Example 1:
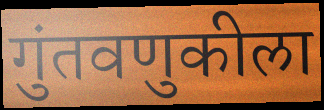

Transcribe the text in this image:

गुंतवणुकीला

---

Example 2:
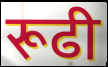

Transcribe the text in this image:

रूढी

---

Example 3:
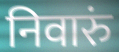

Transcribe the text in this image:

निवारुं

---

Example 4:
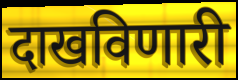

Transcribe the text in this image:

दाखविणारी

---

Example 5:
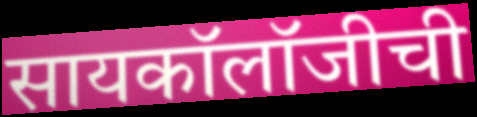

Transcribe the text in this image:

सायकॉलॉजीची